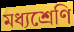
মধ্যশ্রেণি